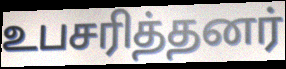
உபசரித்தனர்